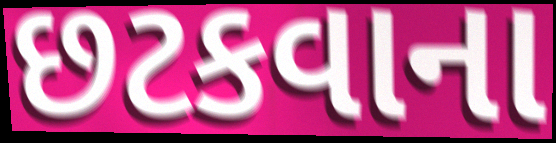
છટકવાના